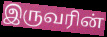
இருவரின்